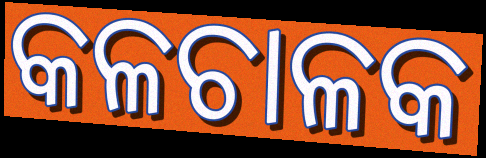
କଳଚାଳକ